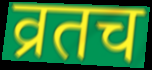
व्रतच